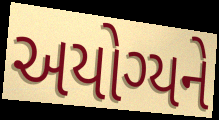
અયોગ્યને